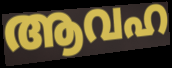
ആവഹ